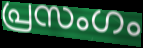
പ്രസംഗം